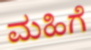
ಮಹಿಗೆ